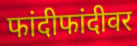
फांदीफांदीवर